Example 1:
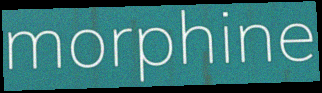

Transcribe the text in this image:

morphine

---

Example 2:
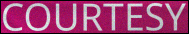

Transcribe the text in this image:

COURTESY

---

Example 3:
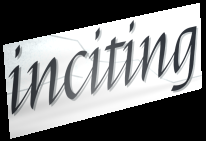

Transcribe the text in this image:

inciting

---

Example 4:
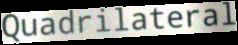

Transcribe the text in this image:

Quadrilateral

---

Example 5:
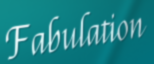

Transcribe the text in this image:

Fabulation